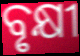
ବୃକ୍ଷୀ